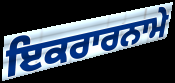
ਇਕਰਾਰਨਾਮੇ